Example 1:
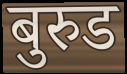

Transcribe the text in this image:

बुरुड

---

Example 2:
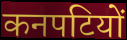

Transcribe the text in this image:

कनपटियों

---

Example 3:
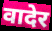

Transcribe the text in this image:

वादेर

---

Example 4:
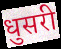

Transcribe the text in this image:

धुसरी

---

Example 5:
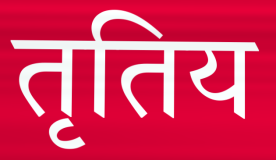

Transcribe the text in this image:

तृतिय